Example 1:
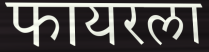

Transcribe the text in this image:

फायरला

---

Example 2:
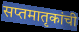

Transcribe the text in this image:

सप्तमातृकांची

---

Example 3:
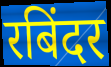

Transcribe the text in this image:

रबिंदर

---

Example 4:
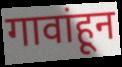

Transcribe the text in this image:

गावांहून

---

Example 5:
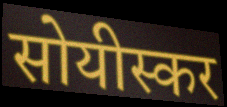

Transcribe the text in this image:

सोयीस्कर